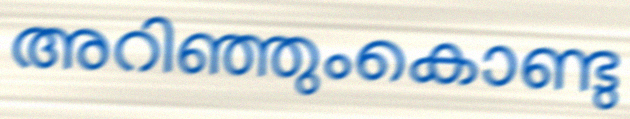
അറിഞ്ഞുംകൊണ്ടു